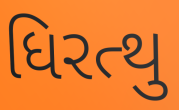
ધિરત્થુ